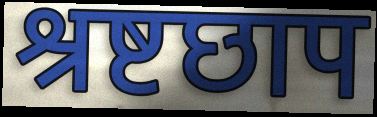
श्रष्टछाप